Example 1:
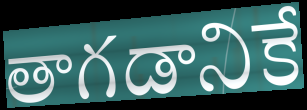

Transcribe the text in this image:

తాగడానికే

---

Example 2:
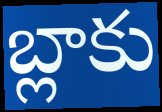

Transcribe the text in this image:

బ్లాకు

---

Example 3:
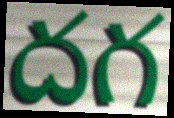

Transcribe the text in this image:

దగ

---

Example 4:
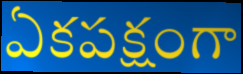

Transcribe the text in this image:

ఏకపక్షంగా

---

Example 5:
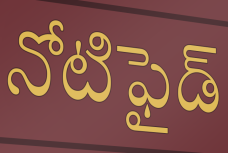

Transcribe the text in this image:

నోటిఫైడ్